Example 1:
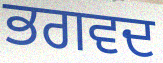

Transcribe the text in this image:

ਭਗਵਦ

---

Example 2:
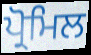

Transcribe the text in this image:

ਪ੍ਰੋਮਿਲ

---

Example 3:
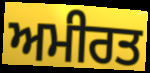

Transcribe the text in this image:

ਅਮੀਰਤ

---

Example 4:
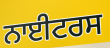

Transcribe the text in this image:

ਨਾਈਟਰਸ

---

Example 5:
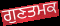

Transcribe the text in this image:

ਗੁਣਤਮਕ